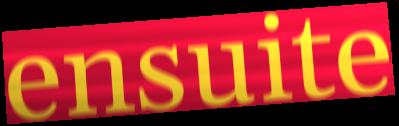
ensuite